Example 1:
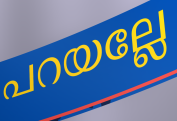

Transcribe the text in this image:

പറയല്ലേ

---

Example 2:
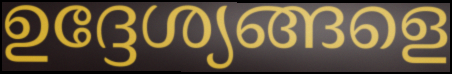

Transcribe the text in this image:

ഉദ്ദേശ്യങ്ങളെ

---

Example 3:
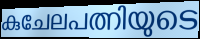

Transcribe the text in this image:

കുചേലപത്നിയുടെ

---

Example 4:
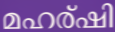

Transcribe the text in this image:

മഹര്ഷി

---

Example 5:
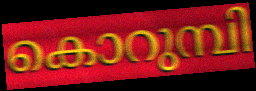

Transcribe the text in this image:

കൊറുമ്പി